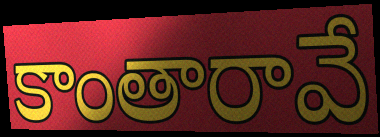
కాంతారావే